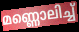
മണ്ണൊലിച്ച്